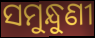
ସମୁନ୍ଧୁଣୀ